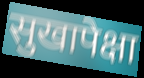
सुखापेक्षा